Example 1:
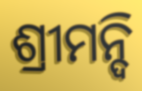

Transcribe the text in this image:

ଶ୍ରୀମନ୍ଦି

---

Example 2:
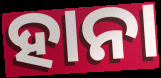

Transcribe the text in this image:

ହାନା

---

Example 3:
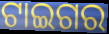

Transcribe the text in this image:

ଟାଇଗର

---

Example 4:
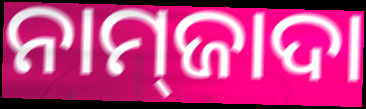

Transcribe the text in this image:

ନାମ୍‌ଜାଦା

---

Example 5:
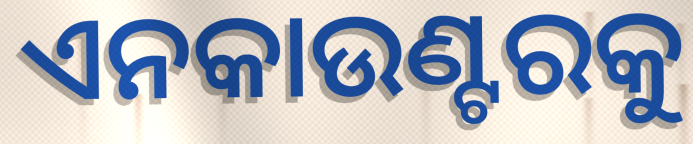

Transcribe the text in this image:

ଏନକାଉଣ୍ଟରକୁ